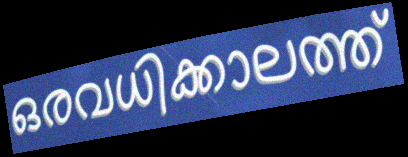
ഒരവധിക്കാലത്ത്